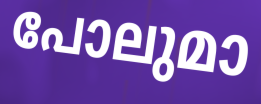
പോലുമാ